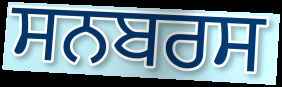
ਸਨਬਰਸ